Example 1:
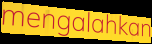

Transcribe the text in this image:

mengalahkan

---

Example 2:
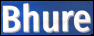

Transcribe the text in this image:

Bhure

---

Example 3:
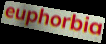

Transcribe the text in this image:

euphorbia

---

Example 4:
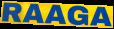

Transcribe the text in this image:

RAAGA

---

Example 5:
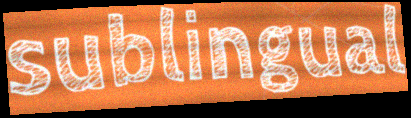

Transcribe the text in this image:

sublingual